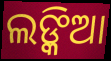
ଲଙ୍କିଆ